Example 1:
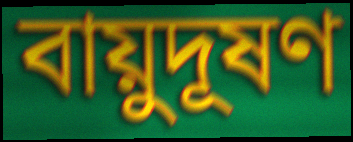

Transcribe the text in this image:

বায়ুদূষণ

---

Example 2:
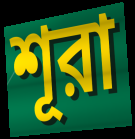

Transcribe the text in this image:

শূরা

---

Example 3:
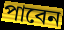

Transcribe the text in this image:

পাবেন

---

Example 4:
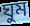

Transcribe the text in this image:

ঘুম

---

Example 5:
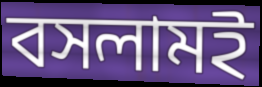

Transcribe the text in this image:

বসলামই